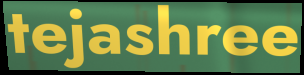
tejashree